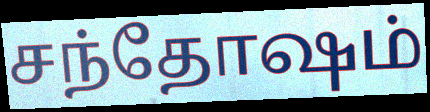
சந்தோஷம்